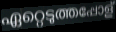
ഏറ്റെടുത്തപ്പോള്